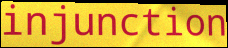
injunction